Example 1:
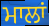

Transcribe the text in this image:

ਮਾਲਾਂ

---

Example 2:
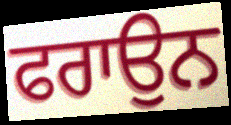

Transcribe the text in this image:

ਫਰਾਉਨ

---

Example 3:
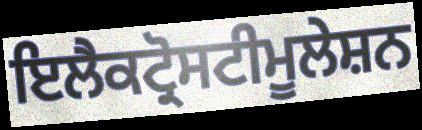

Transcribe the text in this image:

ਇਲੈਕਟ੍ਰੋਸਟੀਮੂਲੇਸ਼ਨ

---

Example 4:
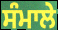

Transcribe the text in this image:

ਸੰਮਾਲੇ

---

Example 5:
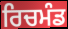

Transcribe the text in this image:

ਰਿਚਮੰਡ